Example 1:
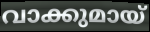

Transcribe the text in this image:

വാക്കുമായ്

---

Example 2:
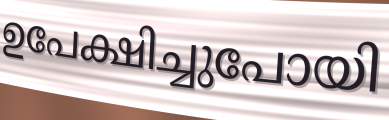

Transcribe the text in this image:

ഉപേക്ഷിച്ചുപോയി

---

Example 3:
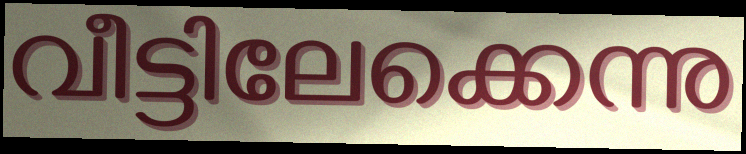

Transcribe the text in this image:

വീട്ടിലേക്കെന്നു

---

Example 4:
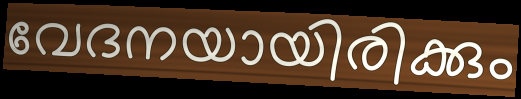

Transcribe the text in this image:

വേദനയായിരിക്കും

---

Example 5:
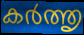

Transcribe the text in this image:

കർത്തൃ